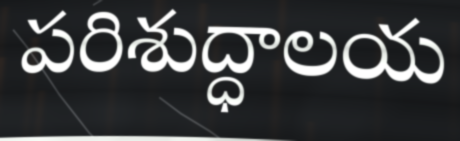
పరిశుద్ధాలయ